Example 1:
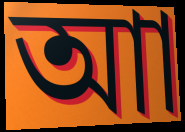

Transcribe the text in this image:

আা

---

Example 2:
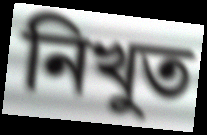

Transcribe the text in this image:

নিখুত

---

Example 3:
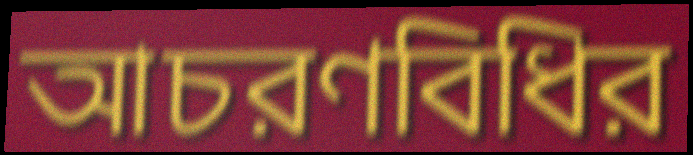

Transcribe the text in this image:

আচরণবিধির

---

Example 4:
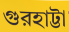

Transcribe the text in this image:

গুরহাট্টা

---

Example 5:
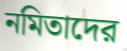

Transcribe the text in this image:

নমিতাদের